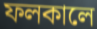
ফলকালে